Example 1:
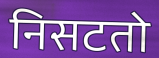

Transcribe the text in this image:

निसटतो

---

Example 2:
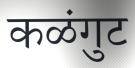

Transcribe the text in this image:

कळंगुट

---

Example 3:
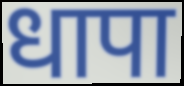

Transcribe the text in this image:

धापा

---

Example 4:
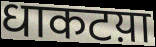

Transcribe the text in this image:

धाकटय़ा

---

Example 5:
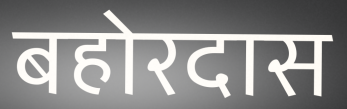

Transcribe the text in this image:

बहोरदास